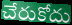
చేరుకోదు